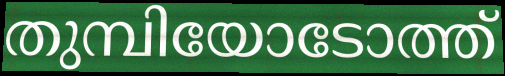
തുമ്പിയോടോത്ത്